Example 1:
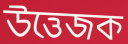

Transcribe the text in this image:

উত্তেজক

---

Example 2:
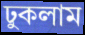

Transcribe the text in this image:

ঢুকলাম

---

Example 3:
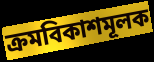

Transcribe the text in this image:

ক্রমবিকাশমূলক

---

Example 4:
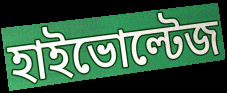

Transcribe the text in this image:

হাইভোল্টেজ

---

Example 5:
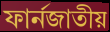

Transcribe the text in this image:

ফার্নজাতীয়